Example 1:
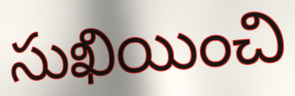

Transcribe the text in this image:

సుఖియించి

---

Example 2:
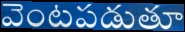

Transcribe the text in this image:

వెంటపడుతూ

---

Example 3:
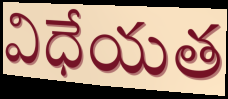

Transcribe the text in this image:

విధేయత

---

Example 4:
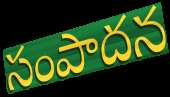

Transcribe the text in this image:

సంపాదన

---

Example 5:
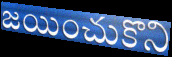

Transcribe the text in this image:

జయించుకొని